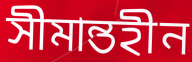
সীমান্তহীন